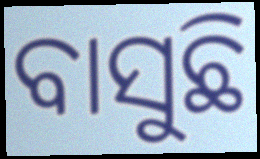
ବାସୁଛି